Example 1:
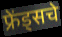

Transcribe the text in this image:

फ्रेंड्सचे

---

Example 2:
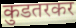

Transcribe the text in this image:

कुडतरकर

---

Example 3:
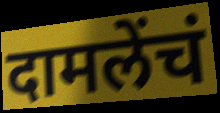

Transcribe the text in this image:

दामलेंचं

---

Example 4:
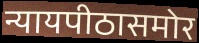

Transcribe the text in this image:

न्यायपीठासमोर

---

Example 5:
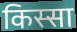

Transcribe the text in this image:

किस्सा